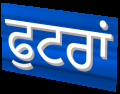
ਫੁਟਰਾਂ